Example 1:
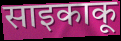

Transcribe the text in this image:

साइकाकू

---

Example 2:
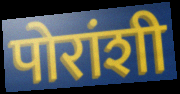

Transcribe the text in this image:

पोरांशी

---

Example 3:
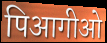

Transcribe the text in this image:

पिआगीओ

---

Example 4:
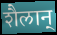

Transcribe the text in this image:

शैलान्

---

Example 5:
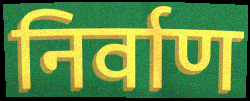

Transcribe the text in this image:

निर्वाण